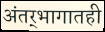
अंतर्भागातही